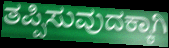
ತಪ್ಪಿಸುವುದಕ್ಕಾಗಿ